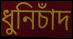
ধুনিচাঁদ